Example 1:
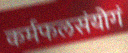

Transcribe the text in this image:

कर्मफलसंयोगं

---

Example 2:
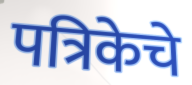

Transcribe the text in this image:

पत्रिकेचे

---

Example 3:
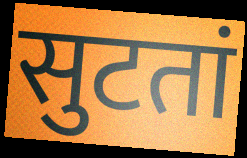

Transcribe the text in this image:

सुटतां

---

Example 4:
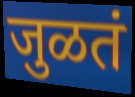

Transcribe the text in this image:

जुळतं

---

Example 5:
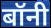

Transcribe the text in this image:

बॉनी